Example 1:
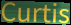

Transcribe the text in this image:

Curtis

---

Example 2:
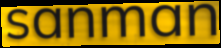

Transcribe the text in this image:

sanman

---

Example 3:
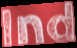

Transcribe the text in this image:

Ind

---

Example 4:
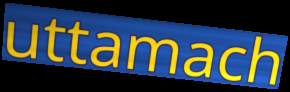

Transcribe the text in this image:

uttamach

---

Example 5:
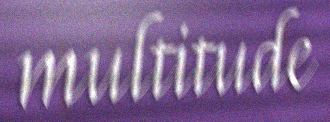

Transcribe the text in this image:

multitude